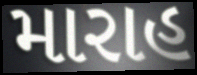
મારાહ